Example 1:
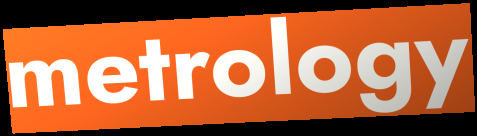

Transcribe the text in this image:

metrology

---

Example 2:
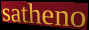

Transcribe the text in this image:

satheno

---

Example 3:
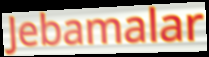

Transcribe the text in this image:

Jebamalar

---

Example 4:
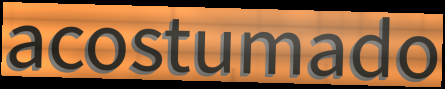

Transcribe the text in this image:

acostumado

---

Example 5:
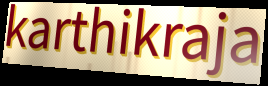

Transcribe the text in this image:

karthikraja